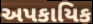
અપકાયિક